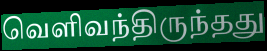
வெளிவந்திருந்தது